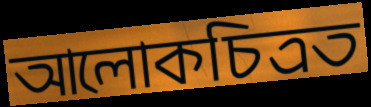
আলোকচিত্ৰত